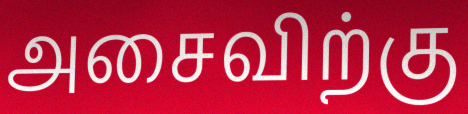
அசைவிற்கு